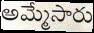
అమ్మేసారు